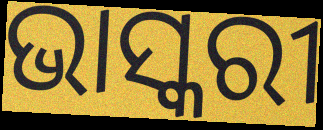
ଭାସ୍କରୀ